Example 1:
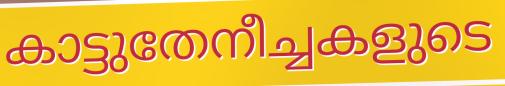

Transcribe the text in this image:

കാട്ടുതേനീച്ചകളുടെ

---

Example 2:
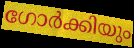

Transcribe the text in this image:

ഗോർക്കിയും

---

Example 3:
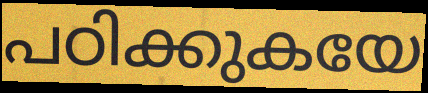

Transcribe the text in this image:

പഠിക്കുകയേ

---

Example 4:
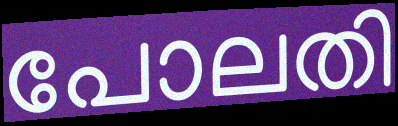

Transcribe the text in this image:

പോലതി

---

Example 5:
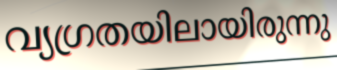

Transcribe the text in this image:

വ്യഗ്രതയിലായിരുന്നു